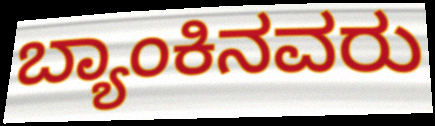
ಬ್ಯಾಂಕಿನವರು